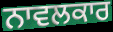
ਨਾਵਲਕਾਰ